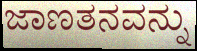
ಜಾಣತನವನ್ನು